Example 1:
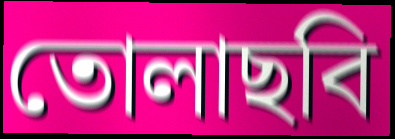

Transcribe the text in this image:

তোলাছবি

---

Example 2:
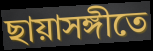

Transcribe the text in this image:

ছায়াসঙ্গীতে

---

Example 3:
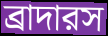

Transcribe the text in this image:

ব্রাদারস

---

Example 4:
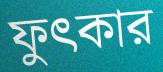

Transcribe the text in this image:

ফুৎকার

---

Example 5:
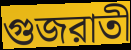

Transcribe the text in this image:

গুজরাতী